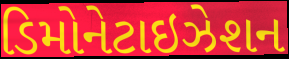
ડિમોનેટાઇઝેશન